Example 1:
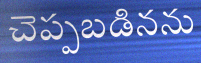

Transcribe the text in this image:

చెప్పబడినను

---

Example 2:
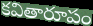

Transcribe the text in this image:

కవితారూపం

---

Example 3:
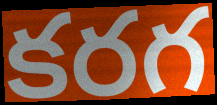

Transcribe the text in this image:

కరగ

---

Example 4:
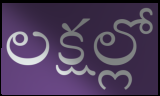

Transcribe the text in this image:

లక్షల్లో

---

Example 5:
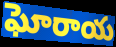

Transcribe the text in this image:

ఘోరాయ